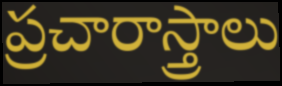
ప్రచారాస్త్రాలు